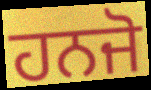
ਹਨਜੋ